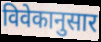
विवेकानुसार